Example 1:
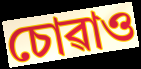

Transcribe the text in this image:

চোৱাও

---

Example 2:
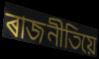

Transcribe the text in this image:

ৰাজনীতিয়ে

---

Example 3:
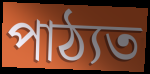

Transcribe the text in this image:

পাঠ্যত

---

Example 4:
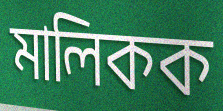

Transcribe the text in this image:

মালিকক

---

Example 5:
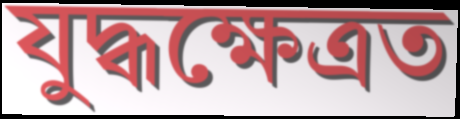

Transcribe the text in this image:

যুদ্ধক্ষেত্ৰত